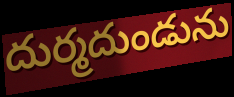
దుర్మదుండును